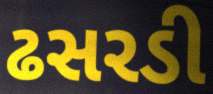
ઢસરડી